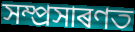
সম্প্ৰসাৰণত